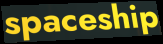
spaceship